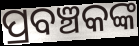
ପ୍ରବଞ୍ଚକଙ୍କ